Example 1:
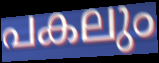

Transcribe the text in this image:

പകലും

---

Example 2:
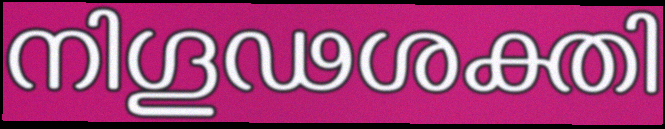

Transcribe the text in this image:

നിഗൂഢശക്തി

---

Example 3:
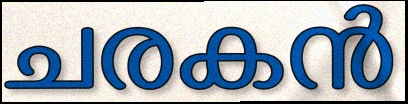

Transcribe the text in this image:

ചരകൻ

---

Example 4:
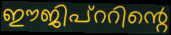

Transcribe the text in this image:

ഈജിപ്ററിന്റെ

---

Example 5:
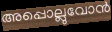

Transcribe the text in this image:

അപ്പൊല്ലുവോൻ